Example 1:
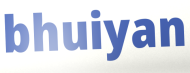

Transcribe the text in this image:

bhuiyan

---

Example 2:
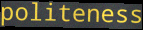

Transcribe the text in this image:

politeness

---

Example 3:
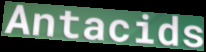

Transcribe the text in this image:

Antacids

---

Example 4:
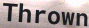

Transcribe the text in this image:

Thrown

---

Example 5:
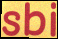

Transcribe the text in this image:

sbi